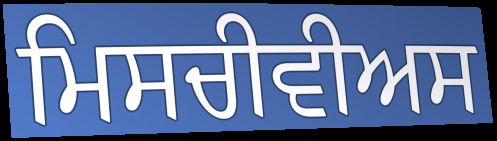
ਮਿਸਚੀਵੀਅਸ